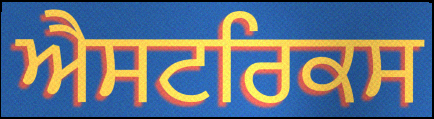
ਐਸਟਰਿਕਸ